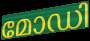
മോഡി